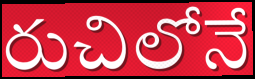
రుచిలోనే